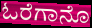
ಓರೆಗಾನೊ